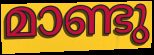
മാണ്ടു